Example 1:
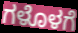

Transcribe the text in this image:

ಗಳೊಳಗೆ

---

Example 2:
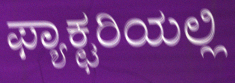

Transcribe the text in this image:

ಫ್ಯಾಕ್ಟರಿಯಲ್ಲಿ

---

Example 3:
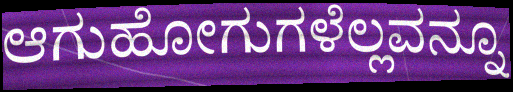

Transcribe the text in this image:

ಆಗುಹೋಗುಗಳೆಲ್ಲವನ್ನೂ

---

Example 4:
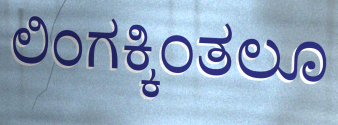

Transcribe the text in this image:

ಲಿಂಗಕ್ಕಿಂತಲೂ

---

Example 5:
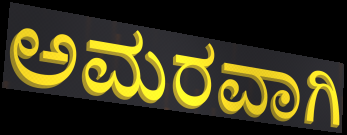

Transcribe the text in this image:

ಅಮರವಾಗಿ